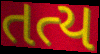
તત્ય